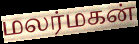
மலர்மகன்